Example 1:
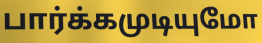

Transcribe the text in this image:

பார்க்கமுடியுமோ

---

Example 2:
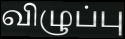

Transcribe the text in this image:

விழுப்பு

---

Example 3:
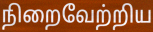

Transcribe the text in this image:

நிறைவேற்றிய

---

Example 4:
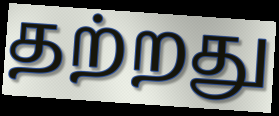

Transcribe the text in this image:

தற்றது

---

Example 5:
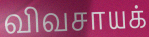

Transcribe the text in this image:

விவசாயக்